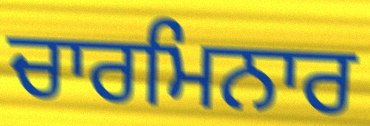
ਚਾਰਮਿਨਾਰ